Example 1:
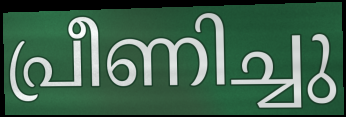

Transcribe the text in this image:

പ്രീണിച്ചു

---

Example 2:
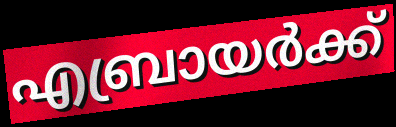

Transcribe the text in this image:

എബ്രായർക്ക്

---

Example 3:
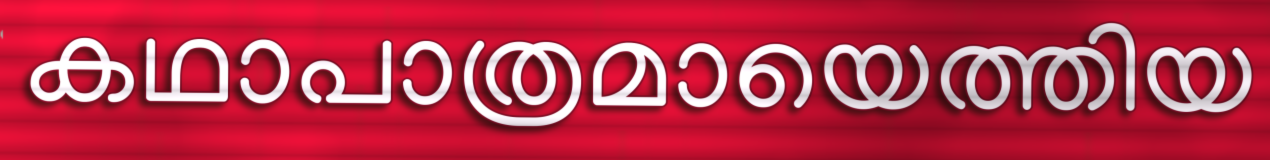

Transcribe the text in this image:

കഥാപാത്രമായെത്തിയ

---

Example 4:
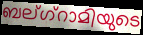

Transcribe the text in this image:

ബല്ഗ്റാമിയുടെ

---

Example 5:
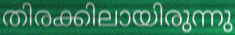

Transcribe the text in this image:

തിരക്കിലായിരുന്നു